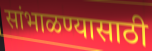
सांभाळण्यासाठी